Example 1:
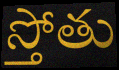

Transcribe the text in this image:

స్తోతు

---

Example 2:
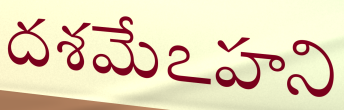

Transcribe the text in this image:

దశమేఽహని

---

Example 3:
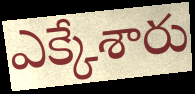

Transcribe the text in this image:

ఎక్కేశారు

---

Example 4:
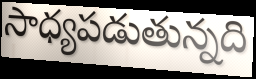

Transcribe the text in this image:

సాధ్యపడుతున్నది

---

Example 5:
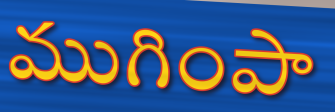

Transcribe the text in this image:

ముగింపా